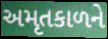
અમૃતકાળને